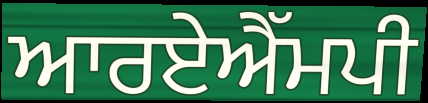
ਆਰਏਐੱਮਪੀ